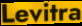
Levitra